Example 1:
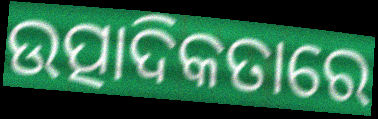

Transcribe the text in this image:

ଉତ୍ପାଦିକତାରେ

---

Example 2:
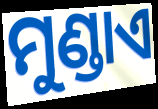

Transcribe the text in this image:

ମୁଣ୍ଡାଏ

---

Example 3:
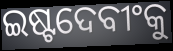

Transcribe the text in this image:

ଇଷ୍ଟଦେବୀଂକୁ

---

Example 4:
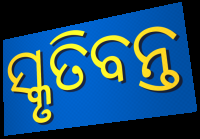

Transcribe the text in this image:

ସ୍କୃତିବନ୍ତ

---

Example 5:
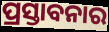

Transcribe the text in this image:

ପ୍ରସ୍ତାବନାର